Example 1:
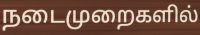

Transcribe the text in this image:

நடைமுறைகளில்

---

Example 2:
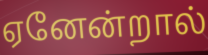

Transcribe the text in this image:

ஏனேன்றால்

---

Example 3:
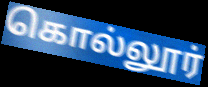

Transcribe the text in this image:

கொல்லூர்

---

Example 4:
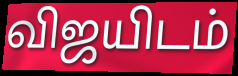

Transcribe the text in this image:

விஜயிடம்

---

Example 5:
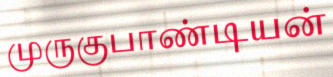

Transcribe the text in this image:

முருகுபாண்டியன்